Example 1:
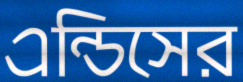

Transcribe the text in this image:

এন্ডিসের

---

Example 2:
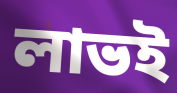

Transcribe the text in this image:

লাভই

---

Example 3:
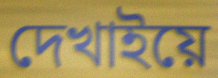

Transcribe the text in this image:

দেখাইয়ে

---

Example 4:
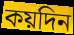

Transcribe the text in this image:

কয়দিন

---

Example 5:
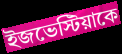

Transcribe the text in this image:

ইজভেস্টিয়াকে